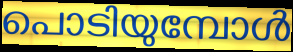
പൊടിയുമ്പോൾ